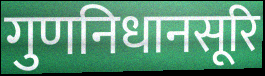
गुणनिधानसूरि